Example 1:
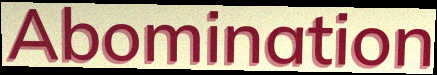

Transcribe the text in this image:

Abomination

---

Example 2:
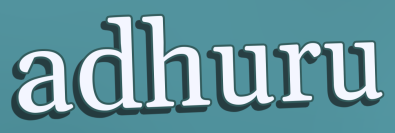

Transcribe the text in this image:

adhuru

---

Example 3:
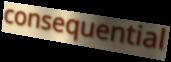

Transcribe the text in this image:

consequential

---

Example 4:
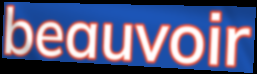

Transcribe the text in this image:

beauvoir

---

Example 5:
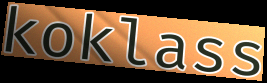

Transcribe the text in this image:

koklass